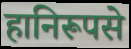
हानिरूपसे